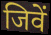
जिवें